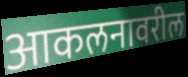
आकलनावरील